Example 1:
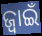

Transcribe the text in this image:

ଜ୍ବାଇଁ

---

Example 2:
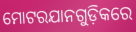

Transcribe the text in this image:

ମୋଟରଯାନଗୁଡ଼ିକରେ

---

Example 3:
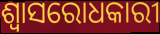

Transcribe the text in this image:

ଶ୍ୱାସରୋଧକାରୀ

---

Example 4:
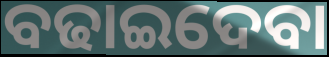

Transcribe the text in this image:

ବଢାଇଦେବା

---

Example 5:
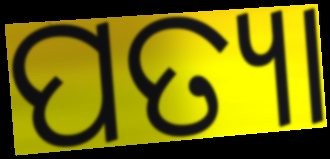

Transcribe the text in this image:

ପତ୍ୟା